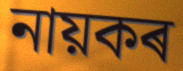
নায়কৰ